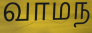
வாமந